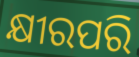
କ୍ଷୀରପରି